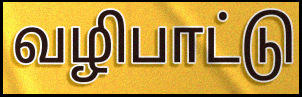
வழிபாட்டு